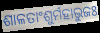
ଶାଳତାଂଶୁର୍ମହାଭୁଜଃ